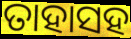
ତାହାସହ